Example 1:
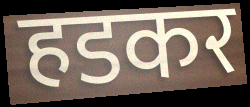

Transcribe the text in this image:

हडकर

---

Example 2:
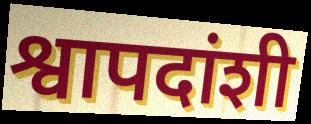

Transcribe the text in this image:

श्वापदांशी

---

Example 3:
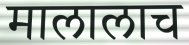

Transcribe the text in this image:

मालालाच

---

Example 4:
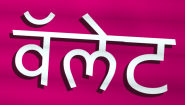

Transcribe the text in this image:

वॅलेट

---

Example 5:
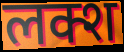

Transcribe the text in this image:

लक्श